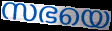
സഭയെ